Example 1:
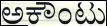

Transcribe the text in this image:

ಅಕೌಂಟು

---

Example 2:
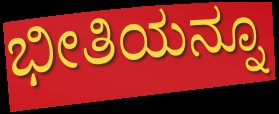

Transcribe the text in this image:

ಭೀತಿಯನ್ನೂ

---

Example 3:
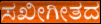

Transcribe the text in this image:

ಸಖೀಗೀತದ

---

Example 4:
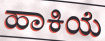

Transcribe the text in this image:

ಹಾಕಿಯೆ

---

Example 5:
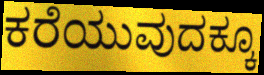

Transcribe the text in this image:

ಕರೆಯುವುದಕ್ಕೂ